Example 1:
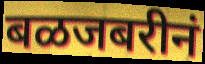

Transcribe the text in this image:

बळजबरीनं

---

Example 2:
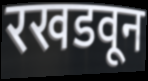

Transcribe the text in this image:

रखडवून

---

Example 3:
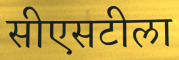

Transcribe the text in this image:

सीएसटीला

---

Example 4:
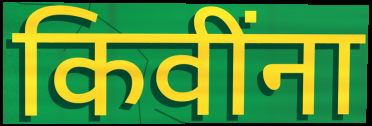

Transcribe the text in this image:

किवींना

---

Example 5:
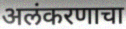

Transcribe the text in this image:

अलंकरणाचा